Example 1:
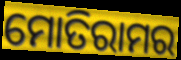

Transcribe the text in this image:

ମୋତିରାମର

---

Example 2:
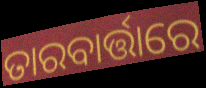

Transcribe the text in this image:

ତାରବାର୍ତ୍ତାରେ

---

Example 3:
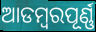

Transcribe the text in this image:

ଆଡମ୍ବରପୂର୍ଣ୍ଣ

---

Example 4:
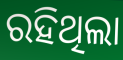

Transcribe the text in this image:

ରହିଥିଲା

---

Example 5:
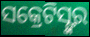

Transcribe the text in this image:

ସକ୍ରେଟିସ୍ଙ୍କର